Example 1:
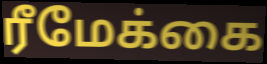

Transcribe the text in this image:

ரீமேக்கை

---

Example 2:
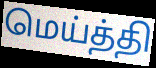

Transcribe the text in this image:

மெய்த்தி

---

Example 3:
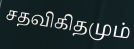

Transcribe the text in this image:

சதவிகிதமும்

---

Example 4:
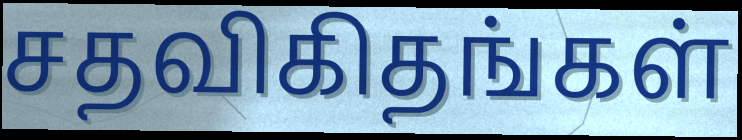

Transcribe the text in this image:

சதவிகிதங்கள்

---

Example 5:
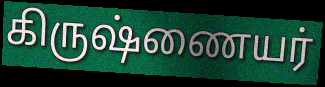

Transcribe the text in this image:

கிருஷ்ணையர்